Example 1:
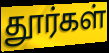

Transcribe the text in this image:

தூர்கள்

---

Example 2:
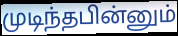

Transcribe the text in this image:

முடிந்தபின்னும்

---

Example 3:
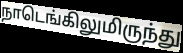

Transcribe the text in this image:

நாடெங்கிலுமிருந்து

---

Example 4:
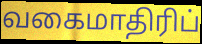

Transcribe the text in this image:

வகைமாதிரிப்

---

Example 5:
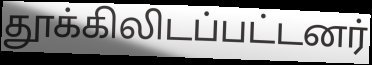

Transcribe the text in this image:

தூக்கிலிடப்பட்டனர்